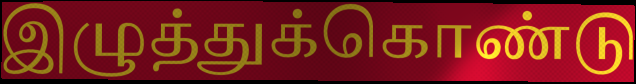
இழுத்துக்கொண்டு